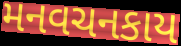
મનવચનકાય